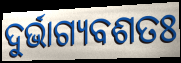
ଦୁର୍ଭାଗ୍ୟବଶତଃ